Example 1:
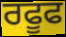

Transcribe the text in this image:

ਰਫੂਫ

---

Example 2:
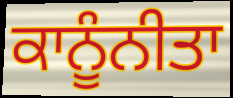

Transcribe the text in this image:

ਕਾਨੂੰਨੀਤਾ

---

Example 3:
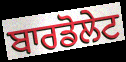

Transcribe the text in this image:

ਬਾਰਡੋਲੇਟ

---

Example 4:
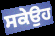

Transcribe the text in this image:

ਸਕੇਉਹ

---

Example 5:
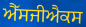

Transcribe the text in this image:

ਐੱਸਜੀਐਕਸ